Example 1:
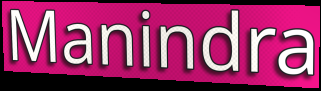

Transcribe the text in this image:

Manindra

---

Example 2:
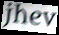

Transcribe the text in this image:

jhev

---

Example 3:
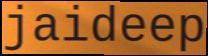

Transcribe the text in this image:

jaideep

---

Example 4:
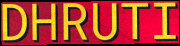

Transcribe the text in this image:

DHRUTI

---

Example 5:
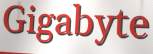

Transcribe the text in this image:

Gigabyte